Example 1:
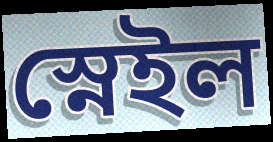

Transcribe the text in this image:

স্নেইল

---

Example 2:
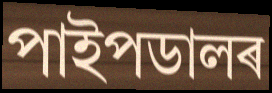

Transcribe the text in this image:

পাইপডালৰ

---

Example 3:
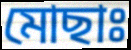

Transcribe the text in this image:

মোছাঃ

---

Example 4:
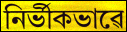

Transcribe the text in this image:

নিৰ্ভীকভাৱে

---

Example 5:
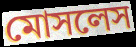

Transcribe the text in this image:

মোসলেস